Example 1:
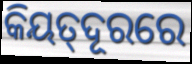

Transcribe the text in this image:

କିୟତ୍‌ଦୂରରେ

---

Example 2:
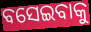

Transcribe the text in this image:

ବସେଇବାକୁ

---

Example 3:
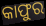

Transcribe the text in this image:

କାଫୁର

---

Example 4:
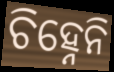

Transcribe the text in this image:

ଚିହ୍ନେନି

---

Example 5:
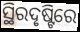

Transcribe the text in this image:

ସ୍ଥିରଦୃଷ୍ଟିରେ